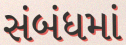
સંબંધમાં